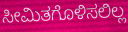
ಸೀಮಿತಗೊಳಿಸಲಿಲ್ಲ